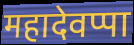
महादेवप्पा